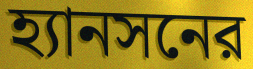
হ্যানসনের